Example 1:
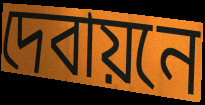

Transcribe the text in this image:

দেবায়নে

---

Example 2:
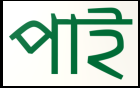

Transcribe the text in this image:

পাই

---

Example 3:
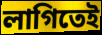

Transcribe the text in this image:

লাগিতেই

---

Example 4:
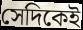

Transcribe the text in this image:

সেদিকেই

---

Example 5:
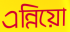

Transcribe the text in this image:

এন্নিয়ো